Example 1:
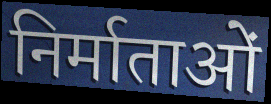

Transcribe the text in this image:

निर्माताओं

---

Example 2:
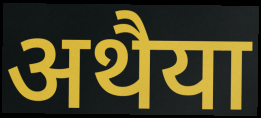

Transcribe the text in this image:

अथैया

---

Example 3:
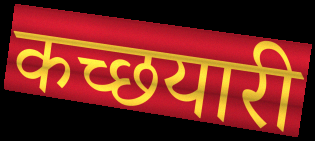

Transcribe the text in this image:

कच्छयारी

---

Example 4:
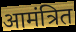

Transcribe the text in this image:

आमंत्रित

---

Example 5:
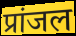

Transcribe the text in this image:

प्रांजल